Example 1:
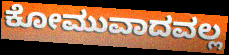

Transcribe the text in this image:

ಕೋಮುವಾದವಲ್ಲ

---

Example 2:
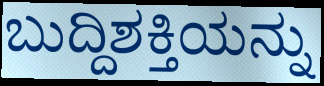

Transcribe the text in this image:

ಬುದ್ದಿಶಕ್ತಿಯನ್ನು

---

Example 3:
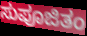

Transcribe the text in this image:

ಸುಪೂಜಿತಂ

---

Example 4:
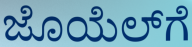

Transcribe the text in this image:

ಜೊಯೆಲ್‌ಗೆ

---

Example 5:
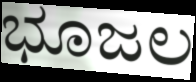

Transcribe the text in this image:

ಭೂಜಲ